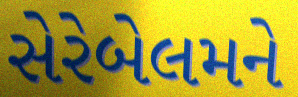
સેરેબેલમને